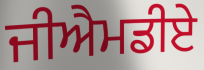
ਜੀਐਮਡੀਏ